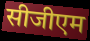
सीजीएम